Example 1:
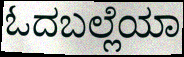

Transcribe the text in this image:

ಓದಬಲ್ಲೆಯಾ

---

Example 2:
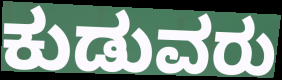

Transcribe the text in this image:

ಕುಡುವರು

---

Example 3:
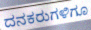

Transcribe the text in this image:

ದನಕರುಗಳಿಗೂ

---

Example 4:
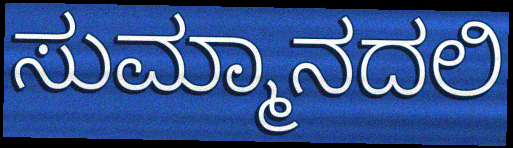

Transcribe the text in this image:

ಸುಮ್ಮಾನದಲಿ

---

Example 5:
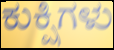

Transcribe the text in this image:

ಕುಕ್ಷಿಗಳು